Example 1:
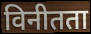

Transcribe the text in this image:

विनीतता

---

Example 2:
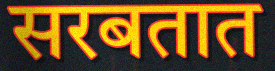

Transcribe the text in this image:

सरबतात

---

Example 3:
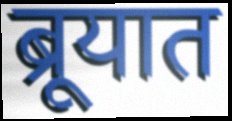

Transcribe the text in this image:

ब्रूयात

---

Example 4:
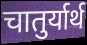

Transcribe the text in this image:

चातुर्यार्थ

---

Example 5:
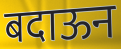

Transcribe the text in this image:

बदाऊन